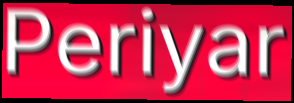
Periyar